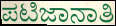
ಪಟಿಜಾನಾತಿ